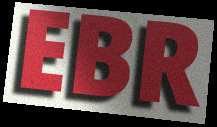
EBR